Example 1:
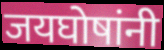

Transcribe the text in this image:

जयघोषांनी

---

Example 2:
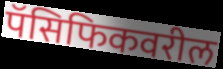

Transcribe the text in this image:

पॅसिफिकवरील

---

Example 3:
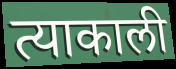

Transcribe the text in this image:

त्याकाली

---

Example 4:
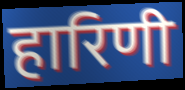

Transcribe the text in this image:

हारिणी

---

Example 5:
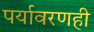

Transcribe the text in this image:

पर्यावरणही